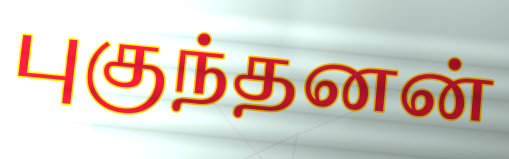
புகுந்தனன்